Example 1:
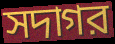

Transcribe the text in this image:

সদাগর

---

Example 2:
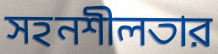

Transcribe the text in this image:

সহনশীলতার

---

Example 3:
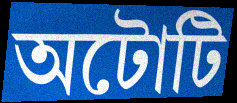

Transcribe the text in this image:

অটোটি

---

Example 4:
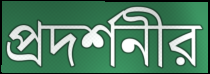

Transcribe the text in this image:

প্রদর্শনীর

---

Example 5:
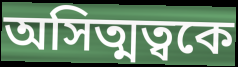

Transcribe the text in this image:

অসিত্মত্বকে